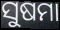
ସୁଷମା